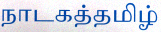
நாடகத்தமிழ்